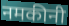
नमकीनी